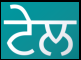
ਟੇਲ